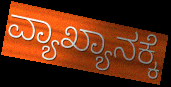
ವ್ಯಾಖ್ಯಾನಕ್ಕೆ